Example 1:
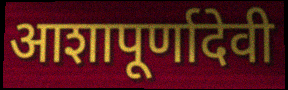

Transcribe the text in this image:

आशापूर्णादेवी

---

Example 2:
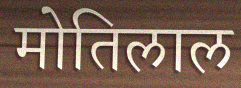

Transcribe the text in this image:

मोतिलाल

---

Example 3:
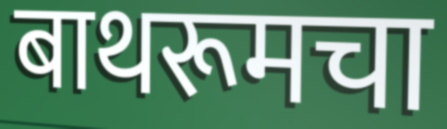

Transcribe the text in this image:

बाथरूमचा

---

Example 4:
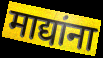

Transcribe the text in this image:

माद्यांना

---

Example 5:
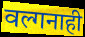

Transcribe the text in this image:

वल्गनाही